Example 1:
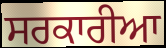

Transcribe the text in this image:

ਸਰਕਾਰੀਆ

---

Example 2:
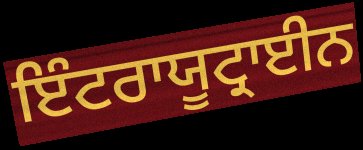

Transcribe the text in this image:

ਇੰਟਰਾਯੂਟ੍ਰਾਈਨ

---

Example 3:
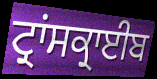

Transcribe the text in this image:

ਟ੍ਰਾਂਸਕ੍ਰਾਈਬ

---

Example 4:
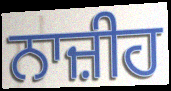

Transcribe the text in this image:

ਨਾਜ਼ੀਹ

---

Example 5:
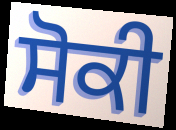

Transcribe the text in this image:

ਸੋਕੀ